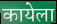
कायेला